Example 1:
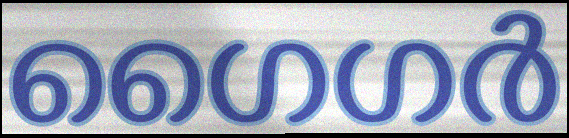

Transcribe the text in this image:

ഗൈഗർ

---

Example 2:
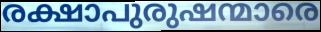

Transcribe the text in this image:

രക്ഷാപുരുഷന്മാരെ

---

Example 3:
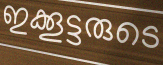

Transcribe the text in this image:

ഇക്കൂട്ടരുടെ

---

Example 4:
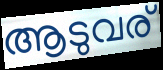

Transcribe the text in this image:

ആടുവര്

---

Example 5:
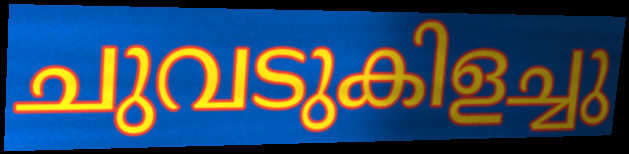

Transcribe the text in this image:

ചുവടുകിളച്ചു